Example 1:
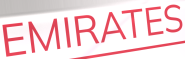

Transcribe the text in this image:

EMIRATES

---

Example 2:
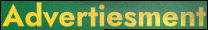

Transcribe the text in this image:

Advertiesment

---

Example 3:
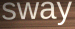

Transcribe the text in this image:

sway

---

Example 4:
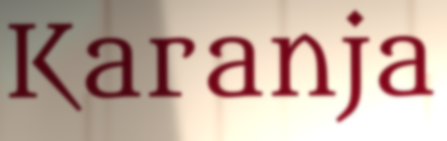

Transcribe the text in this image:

Karanja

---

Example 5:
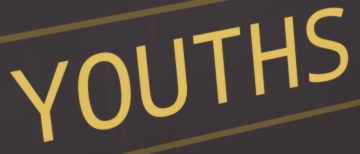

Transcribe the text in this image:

YOUTHS